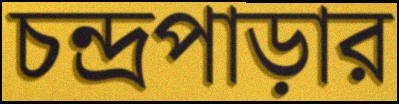
চন্দ্রপাড়ার